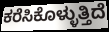
ಕರೆಸಿಕೊಳ್ಳುತ್ತಿದೆ